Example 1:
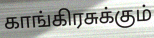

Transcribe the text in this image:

காங்கிரசுக்கும்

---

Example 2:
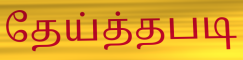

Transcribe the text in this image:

தேய்த்தபடி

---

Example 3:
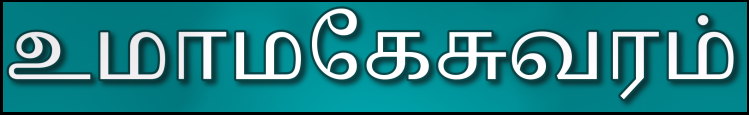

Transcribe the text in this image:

உமாமகேசுவரம்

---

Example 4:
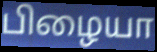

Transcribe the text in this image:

பிழையா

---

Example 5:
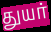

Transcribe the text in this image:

துயர்